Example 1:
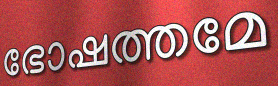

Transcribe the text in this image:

ഭോഷത്തമേ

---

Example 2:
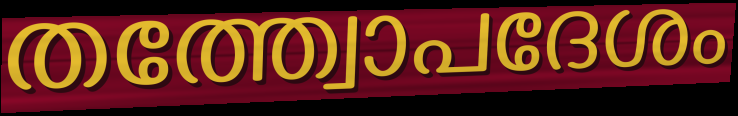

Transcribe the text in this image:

തത്ത്വോപദേശം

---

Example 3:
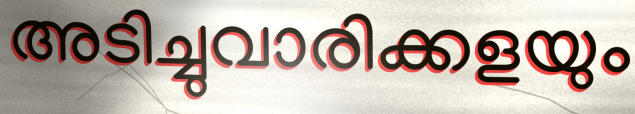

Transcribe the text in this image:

അടിച്ചുവാരിക്കളയും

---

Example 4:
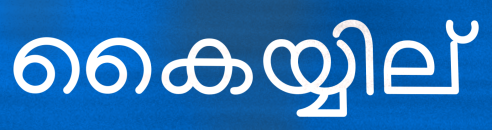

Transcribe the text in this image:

കൈയ്യില്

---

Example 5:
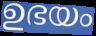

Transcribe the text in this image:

ഉഭയം